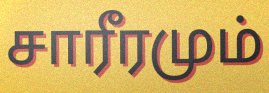
சாரீரமும்